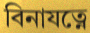
বিনাযত্নে